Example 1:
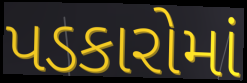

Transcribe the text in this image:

પડકારોમાં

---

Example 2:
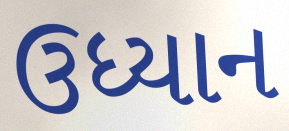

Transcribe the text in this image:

ઉધ્યાન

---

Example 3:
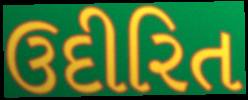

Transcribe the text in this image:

ઉદીરિત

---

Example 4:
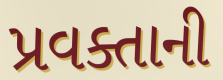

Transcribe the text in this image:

પ્રવક્તાની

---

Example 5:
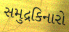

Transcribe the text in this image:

સમુદ્રકિનારો